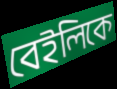
বেইলিকে